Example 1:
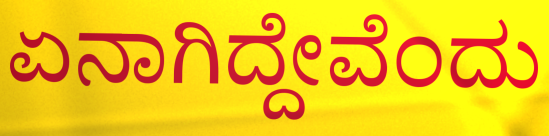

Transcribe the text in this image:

ಏನಾಗಿದ್ದೇವೆಂದು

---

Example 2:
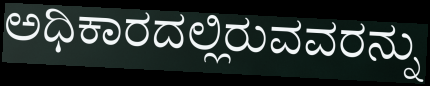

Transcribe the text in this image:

ಅಧಿಕಾರದಲ್ಲಿರುವವರನ್ನು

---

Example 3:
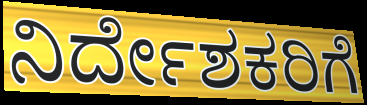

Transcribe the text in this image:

ನಿರ್ದೇಶಕರಿಗೆ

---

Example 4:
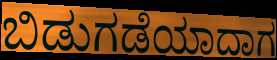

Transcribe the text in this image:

ಬಿಡುಗಡೆಯಾದಾಗ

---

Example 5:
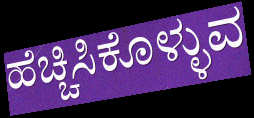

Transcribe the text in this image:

ಹೆಚ್ಚಿಸಿಕೊಳ್ಳುವ